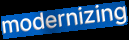
modernizing